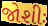
જોશીઃ